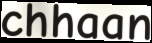
chhaan